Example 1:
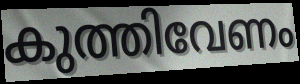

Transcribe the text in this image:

കുത്തിവേണം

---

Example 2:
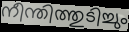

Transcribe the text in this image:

നീന്തിത്തുടിച്ചും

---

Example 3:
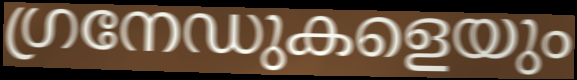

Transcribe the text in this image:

ഗ്രനേഡുകളെയും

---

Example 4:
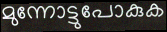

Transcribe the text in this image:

മുന്നോട്ടുപോകുക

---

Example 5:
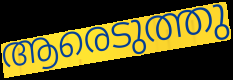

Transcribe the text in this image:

ആരെടുത്തു